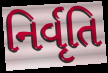
નિર્વૃતિ